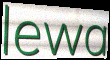
lewa